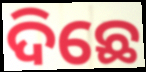
ଦିଛେ